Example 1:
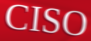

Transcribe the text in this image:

CISO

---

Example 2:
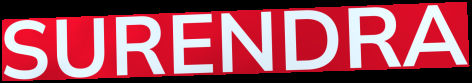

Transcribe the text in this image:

SURENDRA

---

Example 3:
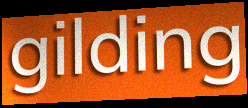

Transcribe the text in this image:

gilding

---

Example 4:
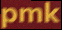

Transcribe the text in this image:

pmk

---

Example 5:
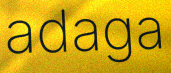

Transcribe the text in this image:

adaga